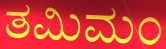
ತಮಿಮಂ